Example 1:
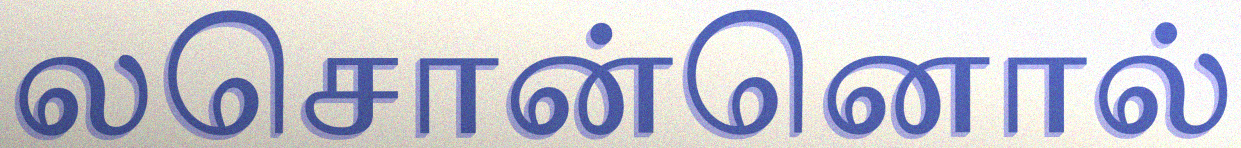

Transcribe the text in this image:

லசொன்னொல்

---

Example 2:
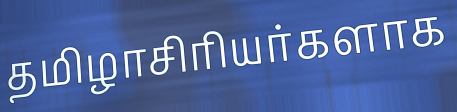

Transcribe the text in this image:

தமிழாசிரியர்களாக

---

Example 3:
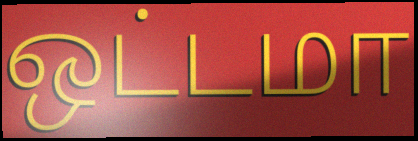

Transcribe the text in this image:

ஒட்டமா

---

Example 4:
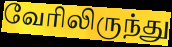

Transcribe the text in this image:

வேரிலிருந்து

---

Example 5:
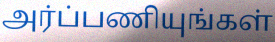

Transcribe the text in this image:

அர்ப்பணியுங்கள்